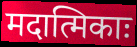
मदात्मिकाः